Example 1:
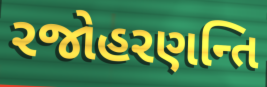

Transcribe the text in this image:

રજોહરણન્તિ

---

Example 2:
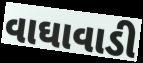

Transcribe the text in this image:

વાઘાવાડી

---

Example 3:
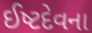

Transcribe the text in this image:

ઈષ્ટદેવના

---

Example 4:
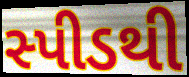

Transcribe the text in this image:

સ્પીડથી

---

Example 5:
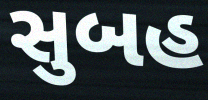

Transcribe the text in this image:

સુબહ